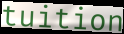
tuition